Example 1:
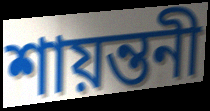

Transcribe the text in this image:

শায়ন্তনী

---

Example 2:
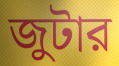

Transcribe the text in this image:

জুটার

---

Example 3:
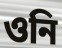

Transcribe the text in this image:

ওনি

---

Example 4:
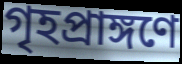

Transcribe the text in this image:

গৃহপ্রাঙ্গণে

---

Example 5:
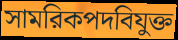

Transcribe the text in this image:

সামরিকপদবিযুক্ত